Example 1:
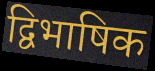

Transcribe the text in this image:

द्विभाषिक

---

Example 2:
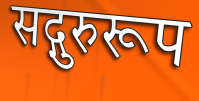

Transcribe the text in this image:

सद्गुरुरूप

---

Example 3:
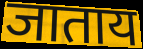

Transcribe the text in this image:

जाताय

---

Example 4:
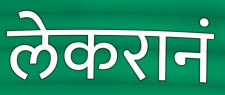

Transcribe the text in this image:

लेकरानं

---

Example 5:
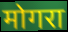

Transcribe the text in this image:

मोगरा